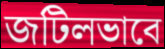
জটিলভাবে